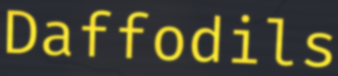
Daffodils